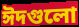
ঈদগুলো